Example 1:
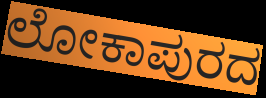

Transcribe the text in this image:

ಲೋಕಾಪುರದ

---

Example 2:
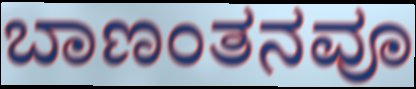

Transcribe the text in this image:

ಬಾಣಂತನವೂ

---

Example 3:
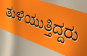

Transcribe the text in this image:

ತುಳಿಯುತ್ತಿದ್ದರು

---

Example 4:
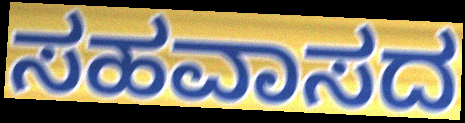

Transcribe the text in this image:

ಸಹವಾಸದ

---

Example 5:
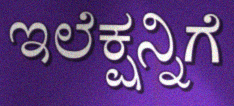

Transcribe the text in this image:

ಇಲೆಕ್ಷನ್ನಿಗೆ